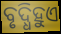
ବୃଦ୍ଧିହୁଏ